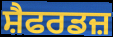
ਸ਼ੈਫਰਡਜ਼